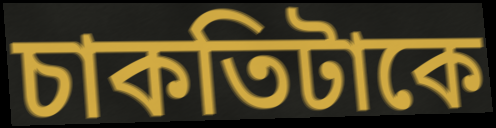
চাকতিটাকে